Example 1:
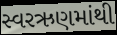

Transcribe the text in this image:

સ્વરઋણમાંથી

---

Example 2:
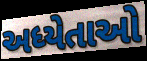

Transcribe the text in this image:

અધ્યેતાઓ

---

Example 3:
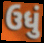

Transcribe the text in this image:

ઉધું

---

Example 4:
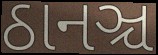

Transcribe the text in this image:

ઠાનઞ્ચ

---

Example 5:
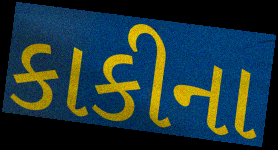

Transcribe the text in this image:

કાકીના